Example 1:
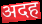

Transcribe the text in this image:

अदह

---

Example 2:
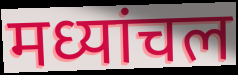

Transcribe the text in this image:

मध्यांचल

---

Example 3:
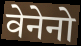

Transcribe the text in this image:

वेनेनो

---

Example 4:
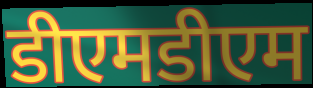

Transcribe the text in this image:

डीएमडीएम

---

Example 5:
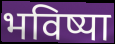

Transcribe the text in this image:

भविष्या